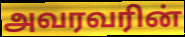
அவரவரின்